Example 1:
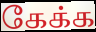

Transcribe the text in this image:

கேக்க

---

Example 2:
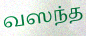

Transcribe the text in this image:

வஸந்த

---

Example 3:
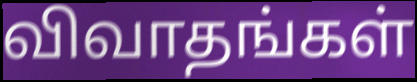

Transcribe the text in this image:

விவாதங்கள்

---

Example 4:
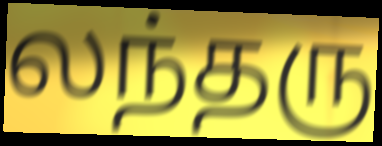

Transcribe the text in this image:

லந்தரு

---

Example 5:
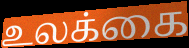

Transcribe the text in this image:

உலக்கை